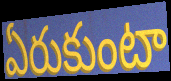
ఏరుకుంటా